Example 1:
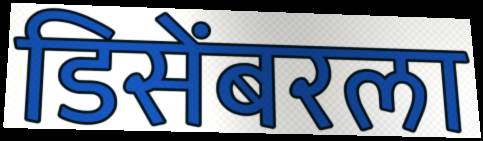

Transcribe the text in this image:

डिसेंबरला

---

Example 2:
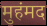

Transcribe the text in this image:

मुहंमद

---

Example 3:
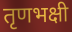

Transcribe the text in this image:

तृणभक्षी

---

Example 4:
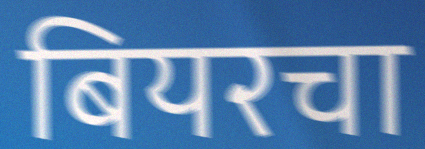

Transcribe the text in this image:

बियरचा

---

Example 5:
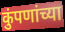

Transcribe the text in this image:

कुंपणांच्या